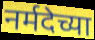
नर्मदेच्या